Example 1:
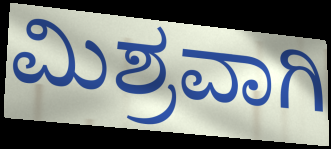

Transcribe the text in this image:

ಮಿಶ್ರವಾಗಿ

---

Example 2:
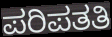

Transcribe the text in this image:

ಪರಿಪತತಿ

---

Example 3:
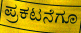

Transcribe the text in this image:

ಪ್ರಕಟನೆಗೂ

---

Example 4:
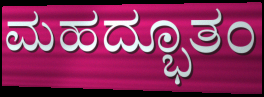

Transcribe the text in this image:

ಮಹದ್ಭೂತಂ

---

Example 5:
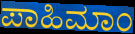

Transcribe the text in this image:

ಪಾಹಿಮಾಂ